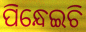
ପିନ୍ଧେଇଚି